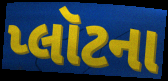
પ્લૉટના